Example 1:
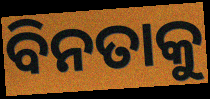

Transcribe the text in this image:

ବିନତାକୁ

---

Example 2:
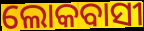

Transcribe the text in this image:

ଲୋକବାସୀ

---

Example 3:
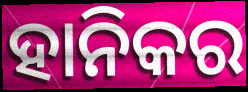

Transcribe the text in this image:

ହାନିକର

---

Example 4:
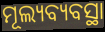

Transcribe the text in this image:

ମୂଲ୍ୟବ୍ୟବସ୍ଥା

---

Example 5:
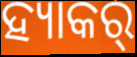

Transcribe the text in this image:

ହ୍ୟାକର୍